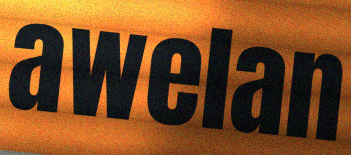
awelan